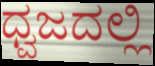
ಧ್ವಜದಲ್ಲಿ